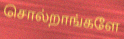
சொல்றாங்களே